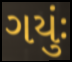
ગયુંઃ